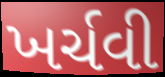
ખર્ચવી